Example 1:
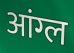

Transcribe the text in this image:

आंग्ल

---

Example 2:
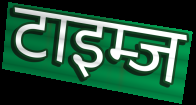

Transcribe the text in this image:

टाइम्ज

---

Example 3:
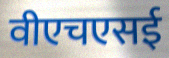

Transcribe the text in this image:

वीएचएसई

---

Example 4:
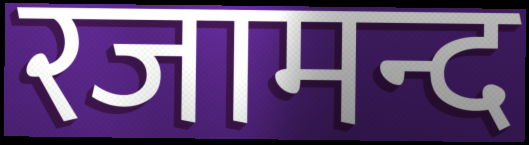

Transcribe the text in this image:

रजामन्द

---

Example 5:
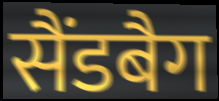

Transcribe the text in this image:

सैंडबैग